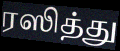
ரஸித்து